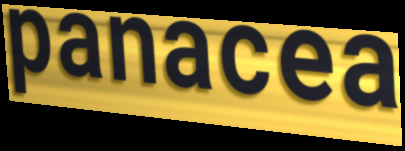
panacea